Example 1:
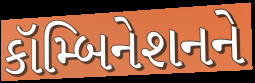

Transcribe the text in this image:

કૉમ્બિનેશનને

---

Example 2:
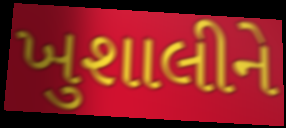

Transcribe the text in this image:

ખુશાલીને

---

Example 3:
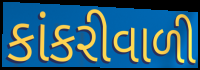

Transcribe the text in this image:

કાંકરીવાળી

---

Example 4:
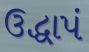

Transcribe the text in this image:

ઉદ્ધાપં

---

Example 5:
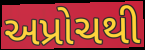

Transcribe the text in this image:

અપ્રોચથી